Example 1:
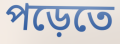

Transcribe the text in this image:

পড়েতে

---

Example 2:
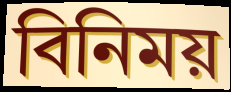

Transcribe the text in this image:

বিনিময়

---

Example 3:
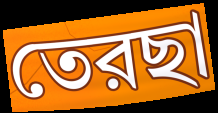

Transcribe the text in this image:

তেরছা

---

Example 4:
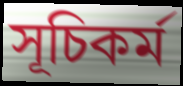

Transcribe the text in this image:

সূচিকর্ম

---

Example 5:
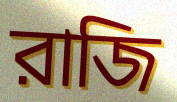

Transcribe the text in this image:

রাজি